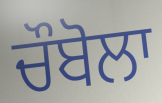
ਚੌਬੋਲਾ